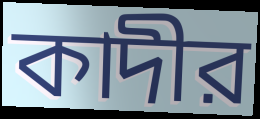
কাদীর